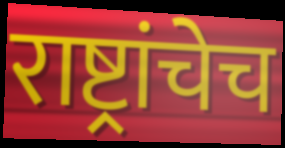
राष्ट्रांचेच